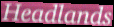
Headlands